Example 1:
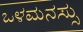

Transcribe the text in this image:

ಒಳಮನಸ್ಸು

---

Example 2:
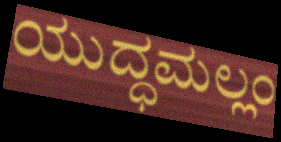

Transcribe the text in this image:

ಯುದ್ಧಮಲ್ಲಂ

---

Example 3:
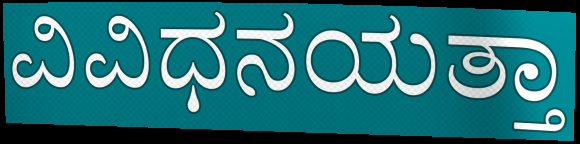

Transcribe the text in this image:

ವಿವಿಧನಯತ್ತಾ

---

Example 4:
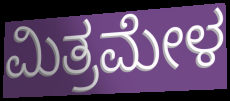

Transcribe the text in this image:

ಮಿತ್ರಮೇಳ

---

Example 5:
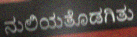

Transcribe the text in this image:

ನುಲಿಯತೊಡಗಿತು